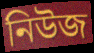
নিউজ